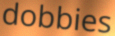
dobbies